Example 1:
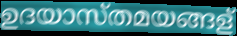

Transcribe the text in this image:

ഉദയാസ്തമയങ്ങള്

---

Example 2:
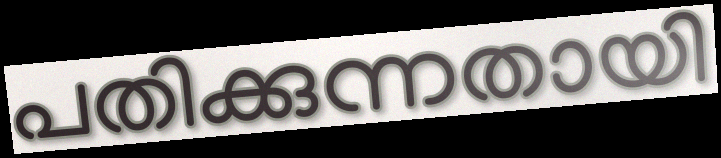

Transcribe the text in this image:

പതിക്കുന്നതായി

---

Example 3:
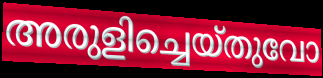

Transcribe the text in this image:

അരുളിച്ചെയ്തുവോ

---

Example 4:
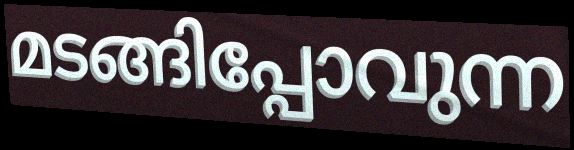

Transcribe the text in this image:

മടങ്ങിപ്പോവുന്ന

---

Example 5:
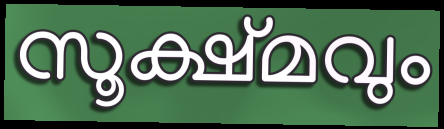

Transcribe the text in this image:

സൂക്ഷ്മവും